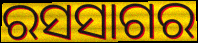
ରସସାଗର